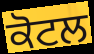
ਕੋਟਲ